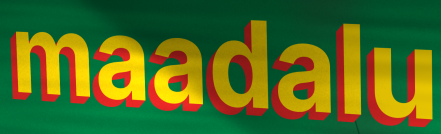
maadalu